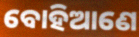
ବୋହିଆଣେ